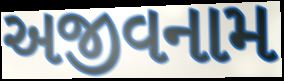
અજીવનામ